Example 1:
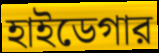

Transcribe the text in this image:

হাইডেগার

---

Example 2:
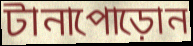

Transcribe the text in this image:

টানাপোড়োন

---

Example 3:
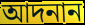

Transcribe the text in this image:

আদনান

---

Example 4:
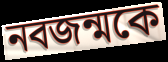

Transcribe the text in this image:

নবজন্মকে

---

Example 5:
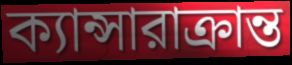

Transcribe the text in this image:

ক্যান্সারাক্রান্ত